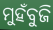
ମୁହଁବୁଜି